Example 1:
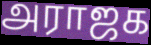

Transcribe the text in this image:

அராஜக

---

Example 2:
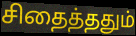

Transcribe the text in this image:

சிதைத்ததும்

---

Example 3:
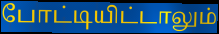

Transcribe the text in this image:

போட்டியிட்டாலும்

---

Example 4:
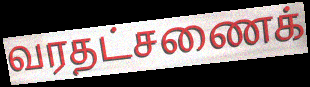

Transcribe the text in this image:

வரதட்சணைக்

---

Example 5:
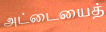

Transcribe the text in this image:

அட்டையைத்